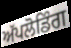
ਅੱਪਲੋਡਿੰਗ